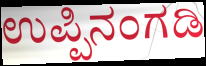
ಉಪ್ಪಿನಂಗಡಿ